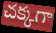
చక్కగా